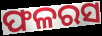
ଫଳରସ